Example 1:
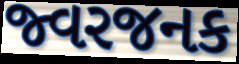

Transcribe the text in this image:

જ્વરજનક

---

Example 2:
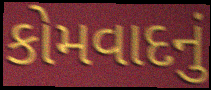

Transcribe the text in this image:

કોમવાદનું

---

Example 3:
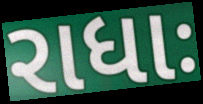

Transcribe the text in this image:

રાધાઃ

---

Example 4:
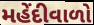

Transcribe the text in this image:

મહેંદીવાળો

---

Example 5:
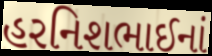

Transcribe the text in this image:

હરનિશભાઈનાં